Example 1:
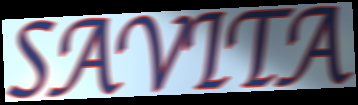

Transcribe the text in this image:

SAVITA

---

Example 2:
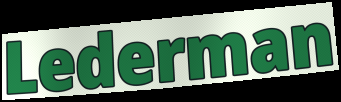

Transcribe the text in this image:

Lederman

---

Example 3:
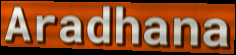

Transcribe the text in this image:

Aradhana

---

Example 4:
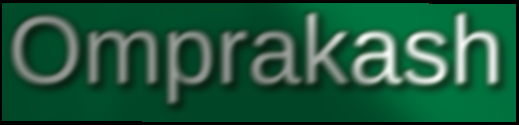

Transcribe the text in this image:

Omprakash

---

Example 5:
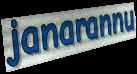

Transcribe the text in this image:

janarannu